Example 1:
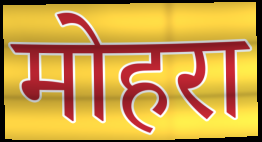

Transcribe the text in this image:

मोहरा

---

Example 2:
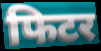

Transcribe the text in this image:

फिटर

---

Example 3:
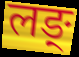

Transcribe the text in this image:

लङ्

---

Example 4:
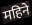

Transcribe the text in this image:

महिने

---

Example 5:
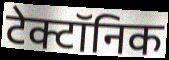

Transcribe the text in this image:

टेक्टॉनिक